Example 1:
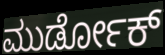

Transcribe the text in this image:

ಮುರ್ಡೋಕ್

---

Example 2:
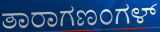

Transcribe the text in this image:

ತಾರಾಗಣಂಗಳ್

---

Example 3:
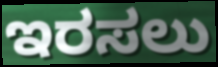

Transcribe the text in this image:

ಇರಸಲು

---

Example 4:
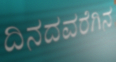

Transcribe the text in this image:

ದಿನದವರೆಗಿನ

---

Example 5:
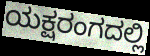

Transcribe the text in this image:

ಯಕ್ಷರಂಗದಲ್ಲಿ